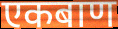
एकबाण